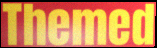
Themed